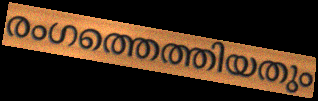
രംഗത്തെത്തിയതും